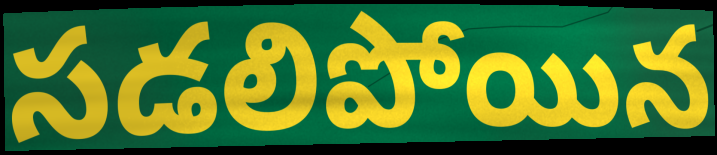
సడలిపోయిన